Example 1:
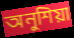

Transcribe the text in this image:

অনুশিয়া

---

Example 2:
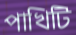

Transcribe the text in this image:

পাখিটি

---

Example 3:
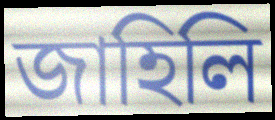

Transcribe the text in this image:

জাহিলি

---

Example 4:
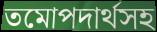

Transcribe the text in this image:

তমোপদার্থসহ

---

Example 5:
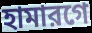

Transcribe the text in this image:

হামারগে